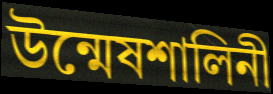
উন্মেষশালিনী